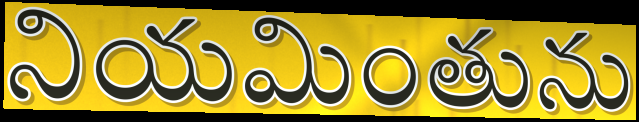
నియమింతును